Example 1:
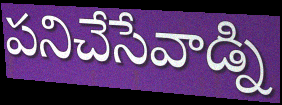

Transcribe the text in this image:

పనిచేసేవాడ్ని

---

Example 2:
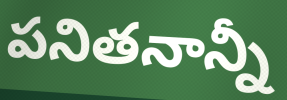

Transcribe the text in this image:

పనితనాన్నీ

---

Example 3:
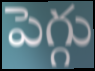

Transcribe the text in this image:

పెగ్గు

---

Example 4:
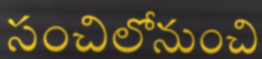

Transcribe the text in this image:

సంచిలోనుంచి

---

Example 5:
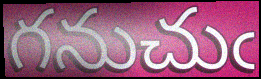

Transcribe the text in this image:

గనుచుఁ